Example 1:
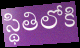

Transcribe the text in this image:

స్థితిలోకి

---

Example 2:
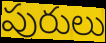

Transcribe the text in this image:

పురులు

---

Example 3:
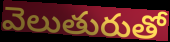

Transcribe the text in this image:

వెలుతురుతో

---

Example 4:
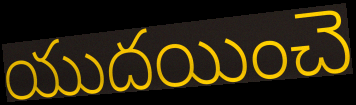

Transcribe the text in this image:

యుదయించె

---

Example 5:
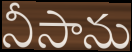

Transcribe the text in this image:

నీసాను